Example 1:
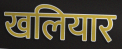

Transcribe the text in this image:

खलियार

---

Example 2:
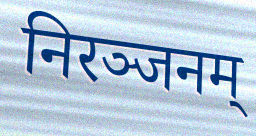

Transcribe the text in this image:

निरञ्जनम्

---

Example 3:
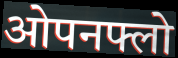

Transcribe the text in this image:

ओपनफ्लो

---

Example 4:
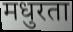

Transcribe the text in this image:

मधुरता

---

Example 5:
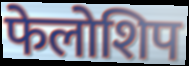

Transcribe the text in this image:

फेलोशिप